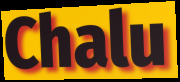
Chalu